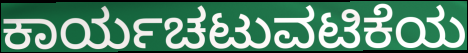
ಕಾರ್ಯಚಟುವಟಿಕೆಯ